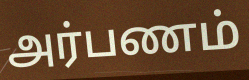
அர்பணம்